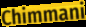
Chimmani